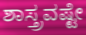
ಶಾಸ್ತ್ರವಷ್ಟೇ